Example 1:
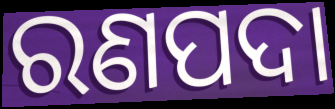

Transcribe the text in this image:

ରଣପଦା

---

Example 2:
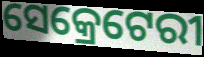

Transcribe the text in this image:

ସେକ୍ରେଟେରୀ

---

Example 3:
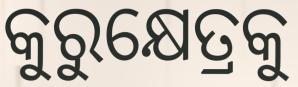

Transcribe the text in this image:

କୁରୁକ୍ଷେତ୍ରକୁ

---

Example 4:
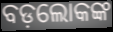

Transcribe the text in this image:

ବଡ଼ଲୋକଙ୍କ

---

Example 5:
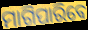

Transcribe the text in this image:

ମାଗିପାରିବେ